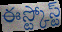
ఈస్ట్కోస్ట్